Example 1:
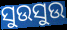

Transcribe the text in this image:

ସୁଉସୁଉ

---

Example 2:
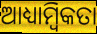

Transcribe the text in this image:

ଆଧ୍ୟାମ୍ବିକତା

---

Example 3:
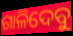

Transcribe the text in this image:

ଗାଳିଦେବୁ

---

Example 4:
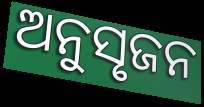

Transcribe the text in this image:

ଅନୁସୃଜନ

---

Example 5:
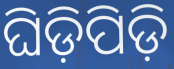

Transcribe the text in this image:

ଘିଡ଼ିପିଡ଼ି